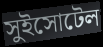
সুইসোটেল